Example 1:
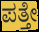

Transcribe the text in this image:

ಪತ್ತೇ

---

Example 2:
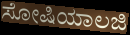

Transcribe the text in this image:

ಸೋಷಿಯಾಲಜಿ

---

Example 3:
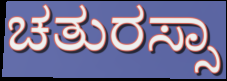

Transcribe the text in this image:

ಚತುರಸ್ಸಾ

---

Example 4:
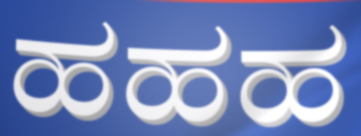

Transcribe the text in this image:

ಹಹಹ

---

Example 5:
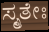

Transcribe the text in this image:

ಸ್ಮೃತೇಃ